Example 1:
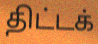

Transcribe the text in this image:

திட்டக்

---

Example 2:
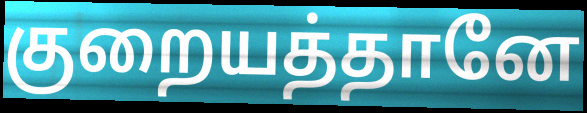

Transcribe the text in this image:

குறையத்தானே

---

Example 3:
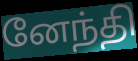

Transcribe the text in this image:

னேந்தி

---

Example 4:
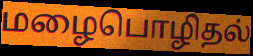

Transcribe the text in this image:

மழைபொழிதல்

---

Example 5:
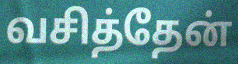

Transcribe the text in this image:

வசித்தேன்